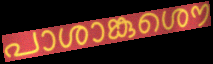
പാശാങ്കുശൌ